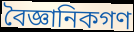
বৈজ্ঞানিকগণ